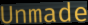
Unmade